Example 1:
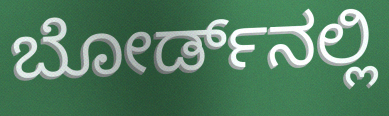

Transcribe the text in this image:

ಬೋರ್ಡ್‌ನಲ್ಲಿ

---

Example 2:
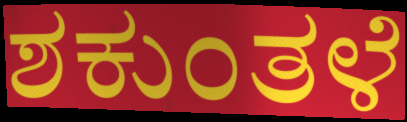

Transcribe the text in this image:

ಶಕುಂತಳೆ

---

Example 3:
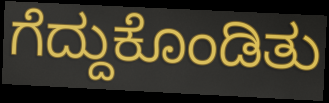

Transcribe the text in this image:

ಗೆದ್ದುಕೊಂಡಿತು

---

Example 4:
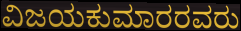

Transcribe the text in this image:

ವಿಜಯಕುಮಾರರವರು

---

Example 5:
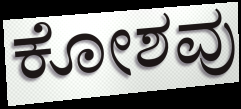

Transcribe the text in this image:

ಕೋಶವು